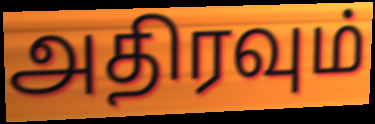
அதிரவும்